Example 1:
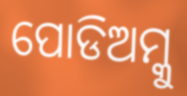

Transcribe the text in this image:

ପୋଡିଅମ୍କୁ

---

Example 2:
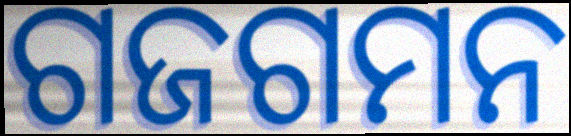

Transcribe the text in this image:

ଗଜଗମନ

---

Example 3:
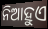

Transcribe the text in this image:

ନିଆହୁଏ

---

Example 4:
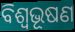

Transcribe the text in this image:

ବିଶ୍ବଭୂଷଣ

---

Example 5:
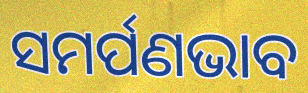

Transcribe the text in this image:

ସମର୍ପଣଭାବ